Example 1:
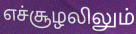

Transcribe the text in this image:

எச்சூழலிலும்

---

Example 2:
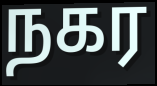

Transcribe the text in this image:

நகர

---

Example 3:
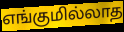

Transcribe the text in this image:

எங்குமில்லாத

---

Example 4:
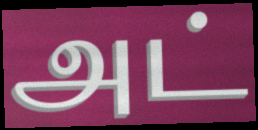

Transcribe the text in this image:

அட்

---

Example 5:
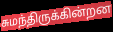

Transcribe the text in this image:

சுமந்திருக்கின்றன